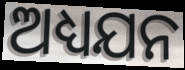
ଅଧ୍ୟଯନ